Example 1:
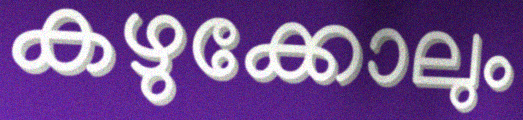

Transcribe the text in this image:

കഴുക്കോലും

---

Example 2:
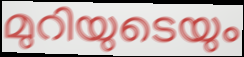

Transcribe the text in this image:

മുറിയുടെയും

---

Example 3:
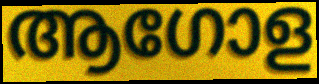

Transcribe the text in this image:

ആഗോള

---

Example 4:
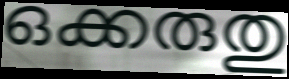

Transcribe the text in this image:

ഒക്കരുതു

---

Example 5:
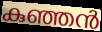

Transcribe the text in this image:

കുഞ്ഞൻ